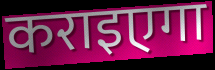
कराइएगा